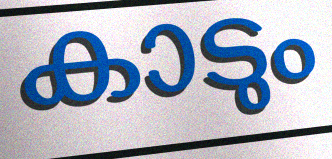
കാടും